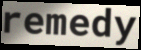
remedy